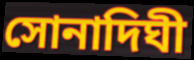
সোনাদিঘী